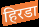
हिरडा